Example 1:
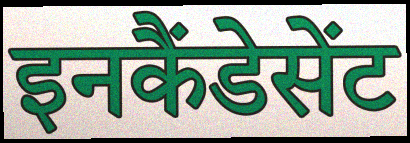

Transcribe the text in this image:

इनकैंडेसेंट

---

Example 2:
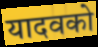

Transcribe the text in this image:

यादवको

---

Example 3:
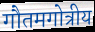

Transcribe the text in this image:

गौतमगोत्रीय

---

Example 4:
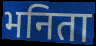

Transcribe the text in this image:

भनिता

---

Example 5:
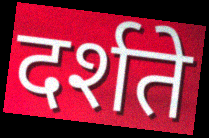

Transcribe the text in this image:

दर्शते